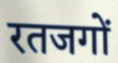
रतजगों